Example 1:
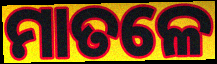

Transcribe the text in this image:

ମାତଳେ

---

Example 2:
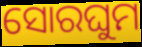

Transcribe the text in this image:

ସୋରଘୁମ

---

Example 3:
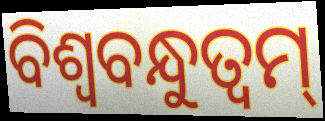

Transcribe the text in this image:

ବିଶ୍ଵବନ୍ଧୁତ୍ଵମ୍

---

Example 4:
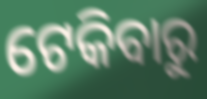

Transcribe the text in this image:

ଟେକିବାରୁ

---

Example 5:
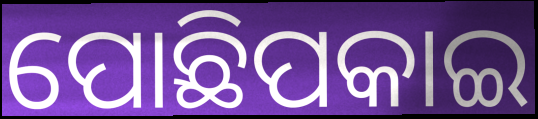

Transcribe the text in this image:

ପୋଛିପକାଇ